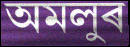
অমলুৰ